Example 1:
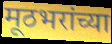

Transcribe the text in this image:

मूठभरांच्या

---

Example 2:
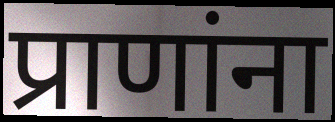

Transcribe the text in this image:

प्राणांना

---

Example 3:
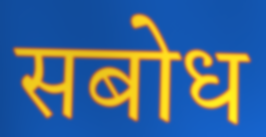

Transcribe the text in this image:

सबोध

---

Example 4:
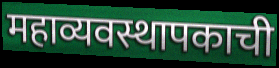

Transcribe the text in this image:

महाव्यवस्थापकाची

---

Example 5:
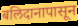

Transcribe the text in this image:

बलिदानापासून